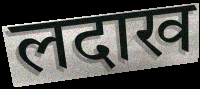
लदाख